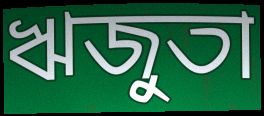
ঋজুতা